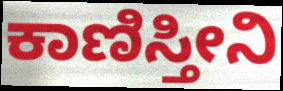
ಕಾಣಿಸ್ತೀನಿ